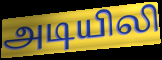
அடியிலி